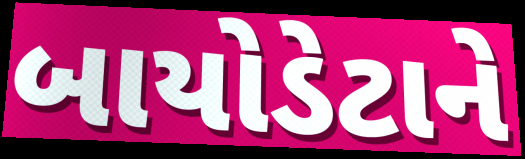
બાયોડેટાને